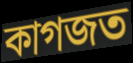
কাগজত